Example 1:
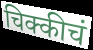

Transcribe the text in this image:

चिक्कीचं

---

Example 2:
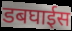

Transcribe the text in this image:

डबघाईस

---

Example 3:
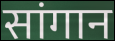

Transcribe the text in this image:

सांगान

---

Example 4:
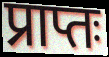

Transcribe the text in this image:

प्राप्तः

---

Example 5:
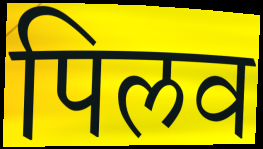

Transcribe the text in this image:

पिलव